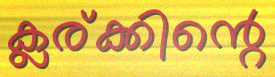
ക്ലര്ക്കിന്റെ